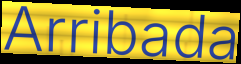
Arribada